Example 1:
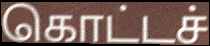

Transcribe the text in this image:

கொட்டச்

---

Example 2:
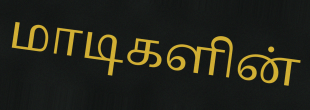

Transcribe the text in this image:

மாடிகளின்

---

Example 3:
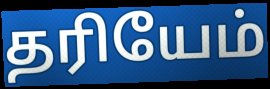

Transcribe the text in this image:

தரியேம்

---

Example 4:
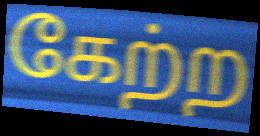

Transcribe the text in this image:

கேற்ற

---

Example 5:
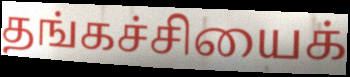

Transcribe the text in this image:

தங்கச்சியைக்